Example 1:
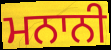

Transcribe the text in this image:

ਮਨਾਨੀ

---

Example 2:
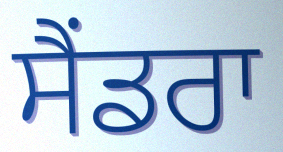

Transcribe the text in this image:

ਸੈਂਡਰਾ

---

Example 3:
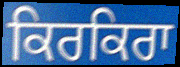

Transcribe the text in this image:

ਕਿਰਕਿਰਾ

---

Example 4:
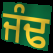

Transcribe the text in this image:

ਜੰਢ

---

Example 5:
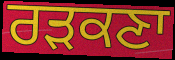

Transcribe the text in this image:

ਰੜਕਣਾ